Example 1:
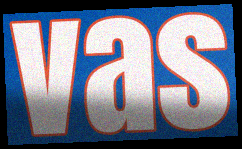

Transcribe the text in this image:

vas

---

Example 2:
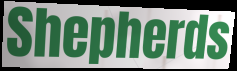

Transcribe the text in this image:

Shepherds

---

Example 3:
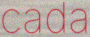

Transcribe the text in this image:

cada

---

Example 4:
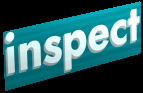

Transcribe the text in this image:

inspect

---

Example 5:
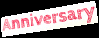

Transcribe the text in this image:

Anniversary